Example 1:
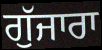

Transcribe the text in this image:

ਗੁੱਜਾਰਾ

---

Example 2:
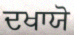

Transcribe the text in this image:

ਦਖਾਯੋ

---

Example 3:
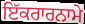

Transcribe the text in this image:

ਇੱਕਰਾਰਨਾਮੇ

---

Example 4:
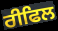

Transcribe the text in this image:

ਰੀਫਿਲ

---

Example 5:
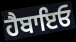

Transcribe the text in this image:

ਹੈਬਾਇਓ